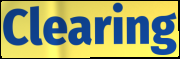
Clearing